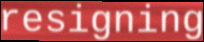
resigning